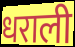
धराली